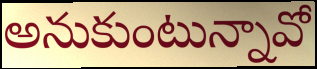
అనుకుంటున్నావో